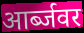
आर्ब्जवर